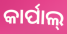
କାର୍ପାଲ୍